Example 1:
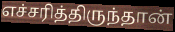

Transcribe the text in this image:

எச்சரித்திருந்தான்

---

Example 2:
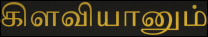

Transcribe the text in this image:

கிளவியானும்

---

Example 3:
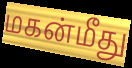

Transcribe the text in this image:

மகன்மீது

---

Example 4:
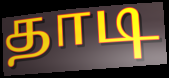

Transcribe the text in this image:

தாடி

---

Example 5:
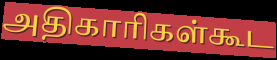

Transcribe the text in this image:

அதிகாரிகள்கூட